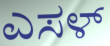
ಎಸಳ್